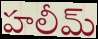
హలీమ్